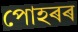
পোহৰৰ